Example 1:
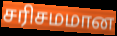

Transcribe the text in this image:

சரிசமமான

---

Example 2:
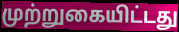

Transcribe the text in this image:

முற்றுகையிட்டது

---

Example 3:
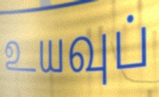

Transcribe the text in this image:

உயவுப்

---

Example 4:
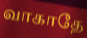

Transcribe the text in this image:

வாகாதே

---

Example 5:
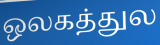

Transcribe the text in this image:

ஒலகத்துல